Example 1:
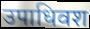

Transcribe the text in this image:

उपाधिवश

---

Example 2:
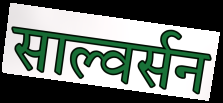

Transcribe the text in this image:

साल्वर्सन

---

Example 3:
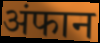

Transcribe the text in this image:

अंफान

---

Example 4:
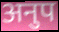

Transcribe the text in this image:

अनुप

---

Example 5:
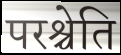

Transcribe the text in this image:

परश्चेति